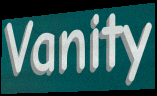
Vanity